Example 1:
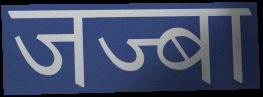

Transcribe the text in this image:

जज्बा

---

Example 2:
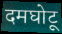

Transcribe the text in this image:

दमघोटू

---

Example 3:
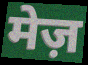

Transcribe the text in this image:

मेज़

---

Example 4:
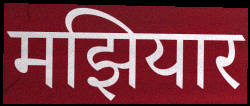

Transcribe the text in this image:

मझियार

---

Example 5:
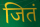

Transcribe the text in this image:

जितं